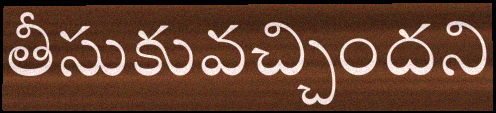
తీసుకువచ్చిందని